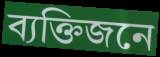
ব্যক্তিজনে